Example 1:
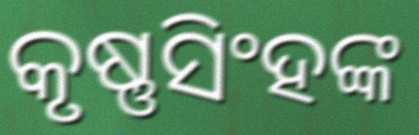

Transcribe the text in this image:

କୃଷ୍ଣସିଂହଙ୍କ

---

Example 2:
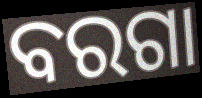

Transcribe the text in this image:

ବରଗା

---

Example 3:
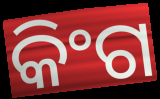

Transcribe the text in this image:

କିଂଗ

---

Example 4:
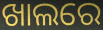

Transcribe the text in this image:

ଖାଲରେ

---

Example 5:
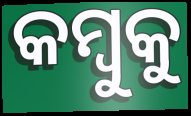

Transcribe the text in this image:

କମ୍ବୁକୁ